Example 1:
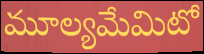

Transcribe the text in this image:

మూల్యమేమిటో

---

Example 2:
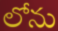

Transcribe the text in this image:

లోను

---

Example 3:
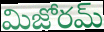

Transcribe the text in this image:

మిజోరమ్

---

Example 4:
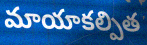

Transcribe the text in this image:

మాయాకల్పిత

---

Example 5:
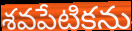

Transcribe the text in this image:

శవపేటికను